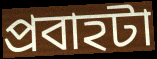
প্রবাহটা